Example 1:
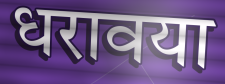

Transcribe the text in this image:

धरावया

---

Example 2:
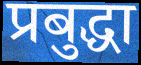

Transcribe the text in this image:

प्रबुद्धा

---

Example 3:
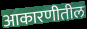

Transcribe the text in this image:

आकारणीतील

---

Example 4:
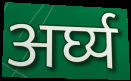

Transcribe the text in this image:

अर्घ्य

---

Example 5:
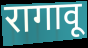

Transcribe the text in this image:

रागावू